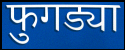
फुगड्या